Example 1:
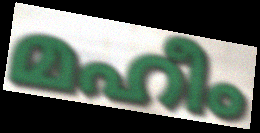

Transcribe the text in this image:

മഹീം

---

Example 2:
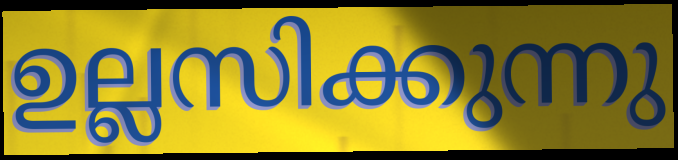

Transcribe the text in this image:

ഉല്ലസിക്കുന്നു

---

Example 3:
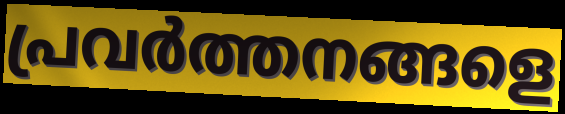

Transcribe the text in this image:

പ്രവർത്തനങ്ങളെ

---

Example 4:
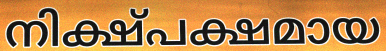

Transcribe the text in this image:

നിക്ഷ്പക്ഷമായ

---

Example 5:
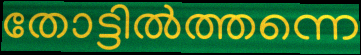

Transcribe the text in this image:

തോട്ടിൽത്തന്നെ